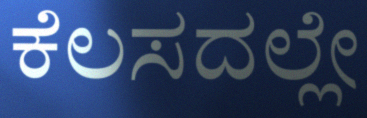
ಕೆಲಸದಲ್ಲೇ